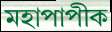
মহাপাপীক